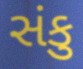
સંકુ